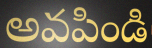
అవపిండి